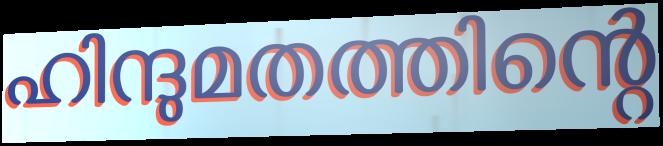
ഹിന്ദുമതത്തിന്റെ